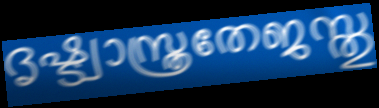
ദൃഷ്ട്വാസ്ത്രതേജസ്തു